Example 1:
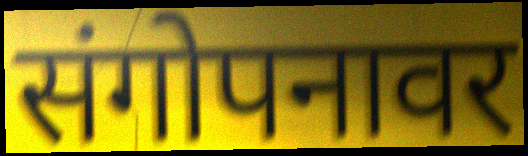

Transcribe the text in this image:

संगोपनावर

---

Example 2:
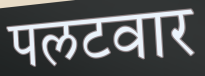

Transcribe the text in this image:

पलटवार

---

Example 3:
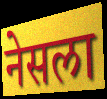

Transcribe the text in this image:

नेसला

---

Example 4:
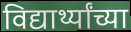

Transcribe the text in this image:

विद्यार्थ्यांच्या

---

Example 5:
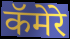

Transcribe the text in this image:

कॅमेरे